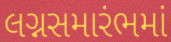
લગ્નસમારંભમાં